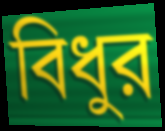
বিধুর